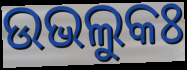
ଉଭଲୁକଃ